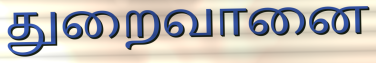
துறைவானை